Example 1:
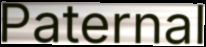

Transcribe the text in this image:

Paternal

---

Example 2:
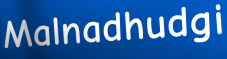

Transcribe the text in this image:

Malnadhudgi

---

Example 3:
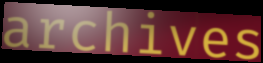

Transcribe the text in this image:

archives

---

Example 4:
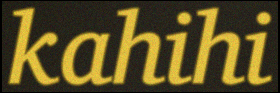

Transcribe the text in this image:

kahihi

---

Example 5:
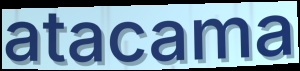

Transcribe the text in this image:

atacama